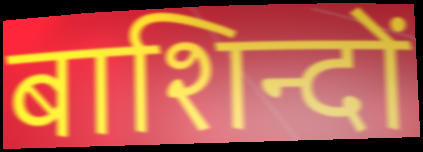
बाशिन्दों